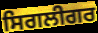
ਸਿਗਲੀਗਰ